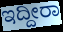
ಇದ್ದೀರಾ